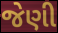
જેણી